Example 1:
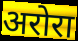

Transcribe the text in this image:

अरोरा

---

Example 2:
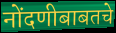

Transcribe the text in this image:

नोंदणीबाबतचे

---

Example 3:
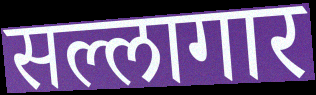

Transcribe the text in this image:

सल्लागार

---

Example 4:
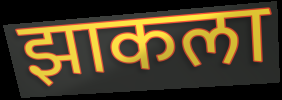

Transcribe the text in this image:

झाकला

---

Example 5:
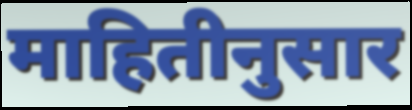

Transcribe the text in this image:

माहितीनुसार